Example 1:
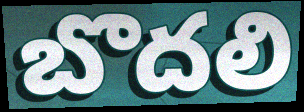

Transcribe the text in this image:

బొదలి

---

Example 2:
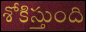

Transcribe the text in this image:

శోకిస్తుంది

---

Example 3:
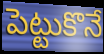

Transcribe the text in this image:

పెట్టుకొనే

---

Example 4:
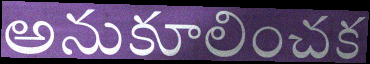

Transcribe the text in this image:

అనుకూలించక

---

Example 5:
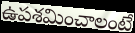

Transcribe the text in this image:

ఉపశమించాలంటే